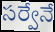
సర్వేనే